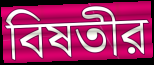
বিষতীর